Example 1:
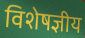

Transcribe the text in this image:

विशेषज्ञीय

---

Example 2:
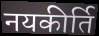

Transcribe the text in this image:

नयकीर्ति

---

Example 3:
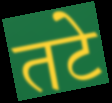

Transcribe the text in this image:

तटे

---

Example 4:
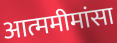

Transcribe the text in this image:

आत्ममीमांसा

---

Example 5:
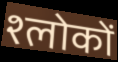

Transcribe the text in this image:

श्लोकों